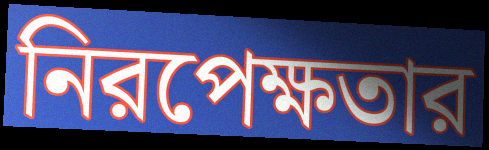
নিরপেক্ষতার